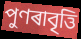
পুণৰাবৃত্তি